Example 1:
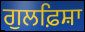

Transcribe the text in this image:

ਗੁਲਫ਼ਿਸ਼ਾ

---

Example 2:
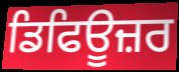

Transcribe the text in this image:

ਡਿਫਿਊਜ਼ਰ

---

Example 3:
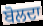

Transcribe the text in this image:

ਬੋਲਦਾ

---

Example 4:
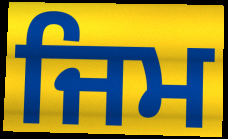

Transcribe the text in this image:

ਜਿਮ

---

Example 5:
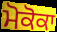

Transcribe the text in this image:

ਮੋਕੋਕਾ